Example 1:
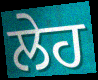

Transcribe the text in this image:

ਲੇਹ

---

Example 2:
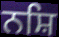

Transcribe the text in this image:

ਨਸ਼ਿ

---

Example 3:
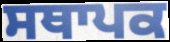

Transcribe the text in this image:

ਸਥਾਪਕ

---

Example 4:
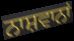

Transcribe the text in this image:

ਨਾਸ਼ਵਾਨਾਂ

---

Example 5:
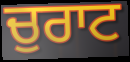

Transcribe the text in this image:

ਚੁਰਾਟ